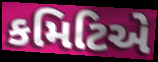
કમિટિએ